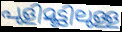
പുളിമൂട്ടിലുള്ള